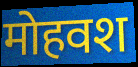
मोहवश